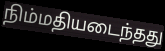
நிம்மதியடைந்தது